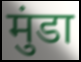
मुंडा